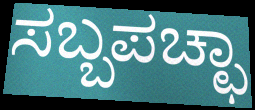
ಸಬ್ಬಪಚ್ಛಾ